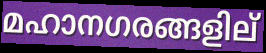
മഹാനഗരങ്ങളില്